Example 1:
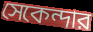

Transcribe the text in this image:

সেকেন্দার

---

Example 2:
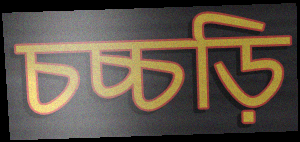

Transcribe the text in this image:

চচ্চড়ি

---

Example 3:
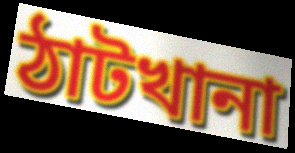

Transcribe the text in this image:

ঠাটখানা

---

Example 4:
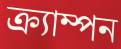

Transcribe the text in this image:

ক্র্যাম্পন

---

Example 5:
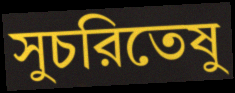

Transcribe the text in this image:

সুচরিতেষু